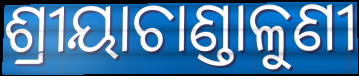
ଶ୍ରୀୟାଚାଣ୍ଡାଳୁଣୀ